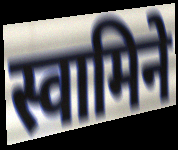
स्वामिने